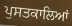
ਪੁਸਤਕਾਲਿਆਂ